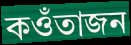
কওঁতাজন